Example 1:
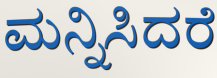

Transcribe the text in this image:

ಮನ್ನಿಸಿದರೆ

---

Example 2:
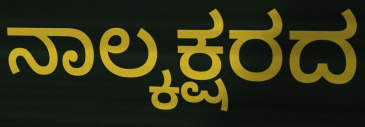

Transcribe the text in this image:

ನಾಲ್ಕಕ್ಷರದ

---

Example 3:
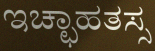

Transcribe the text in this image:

ಇಚ್ಛಾಹತಸ್ಸ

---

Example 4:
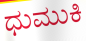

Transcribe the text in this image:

ಧುಮುಕಿ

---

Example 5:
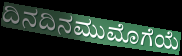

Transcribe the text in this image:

ದಿನದಿನಮುಮೊಗೆಯೆ